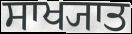
ਸਾਖ੍ਯਾਤ